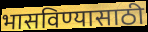
भासविण्यासाठी